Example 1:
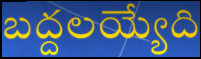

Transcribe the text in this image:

బద్దలయ్యేది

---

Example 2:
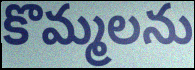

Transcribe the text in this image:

కొమ్మలను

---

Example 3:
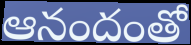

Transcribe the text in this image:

ఆనందంతో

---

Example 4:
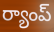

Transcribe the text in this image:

ర్యాంప్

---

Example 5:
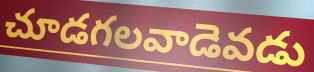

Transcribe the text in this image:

చూడగలవాడెవడు